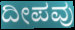
ದೀಪವು